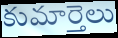
కుమార్తెలు